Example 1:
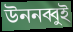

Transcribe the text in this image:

উননব্বুই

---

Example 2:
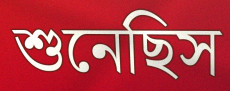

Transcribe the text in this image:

শুনেছিস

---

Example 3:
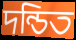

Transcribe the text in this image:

দন্ডিত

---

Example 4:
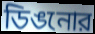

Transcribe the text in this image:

ডিঙনোর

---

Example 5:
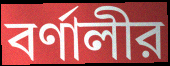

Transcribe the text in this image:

বর্ণালীর